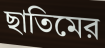
ছাতিমের